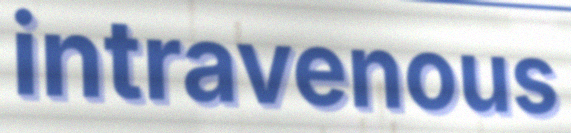
intravenous